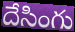
దేసింగు